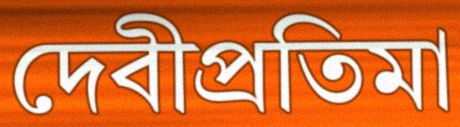
দেবীপ্রতিমা